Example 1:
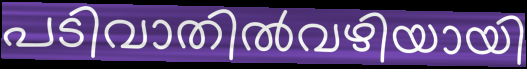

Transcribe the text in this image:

പടിവാതിൽവഴിയായി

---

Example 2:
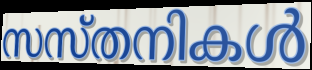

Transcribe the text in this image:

സസ്തനികൾ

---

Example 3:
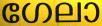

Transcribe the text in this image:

ഗേലാ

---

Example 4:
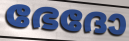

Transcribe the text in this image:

ഭേദോ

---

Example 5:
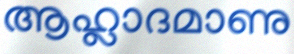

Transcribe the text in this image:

ആഹ്ലാദമാണു